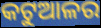
କଟୁଆଳର